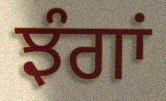
ਝੰਗਾਂ